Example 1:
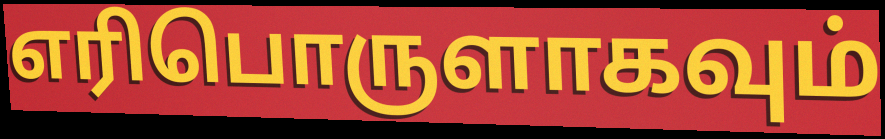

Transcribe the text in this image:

எரிபொருளாகவும்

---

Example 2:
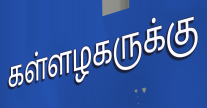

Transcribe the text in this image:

கள்ளழகருக்கு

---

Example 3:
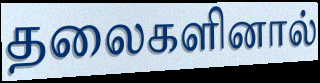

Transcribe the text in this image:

தலைகளினால்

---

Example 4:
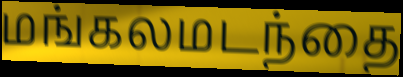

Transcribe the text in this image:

மங்கலமடந்தை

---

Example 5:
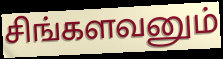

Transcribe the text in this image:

சிங்களவனும்